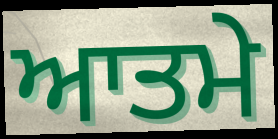
ਆਤਮੇ